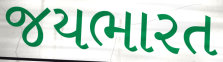
જયભારત